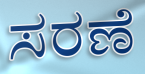
ಸರಣೆ